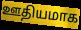
ஊதியமாக